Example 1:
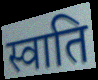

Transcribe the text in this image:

स्वाति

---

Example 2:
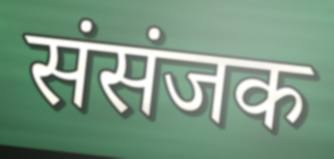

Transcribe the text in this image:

संसंजक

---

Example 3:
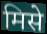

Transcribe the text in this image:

मिसे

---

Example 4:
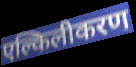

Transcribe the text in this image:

एल्किलीकरण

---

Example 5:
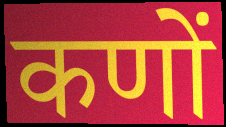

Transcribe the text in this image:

कणों